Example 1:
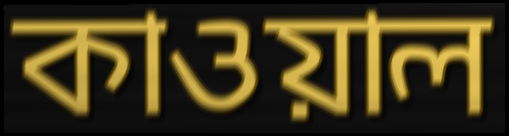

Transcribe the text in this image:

কাওয়াল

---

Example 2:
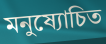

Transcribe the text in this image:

মনুষ্যোচিত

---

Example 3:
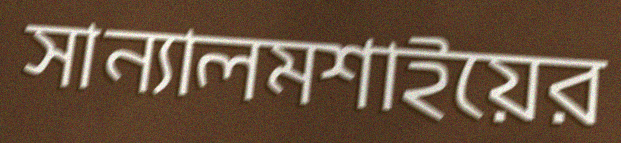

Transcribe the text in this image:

সান্যালমশাইয়ের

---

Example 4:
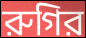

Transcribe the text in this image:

রুগির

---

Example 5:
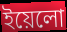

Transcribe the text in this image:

ইয়েলো